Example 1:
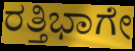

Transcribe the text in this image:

ರತ್ತಿಭಾಗೇ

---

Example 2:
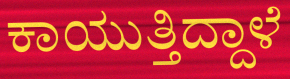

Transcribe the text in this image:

ಕಾಯುತ್ತಿದ್ದಾಳೆ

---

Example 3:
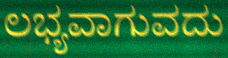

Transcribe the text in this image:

ಲಭ್ಯವಾಗುವದು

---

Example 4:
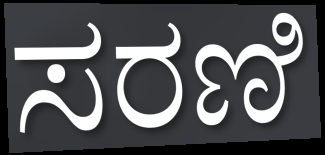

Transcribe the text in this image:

ಸರಣಿ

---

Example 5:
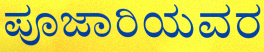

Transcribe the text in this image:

ಪೂಜಾರಿಯವರ